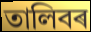
তালিবৰ